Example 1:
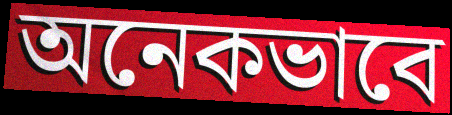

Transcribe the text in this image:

অনেকভাবে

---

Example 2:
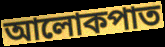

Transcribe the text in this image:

আলোকপাত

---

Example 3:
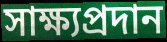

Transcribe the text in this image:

সাক্ষ্যপ্রদান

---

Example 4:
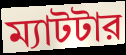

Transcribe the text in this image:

ম্যাটটার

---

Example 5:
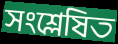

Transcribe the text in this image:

সংশ্লেষিত